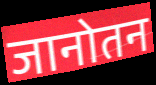
जानोतन